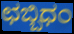
ಛಬ್ಬಿಧಂ